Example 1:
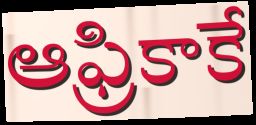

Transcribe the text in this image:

ఆఫ్రికాకే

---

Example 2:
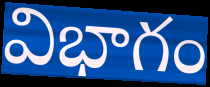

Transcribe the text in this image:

విభాగం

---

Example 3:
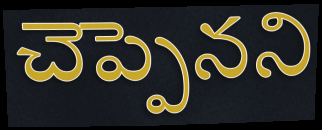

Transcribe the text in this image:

చెప్పెనని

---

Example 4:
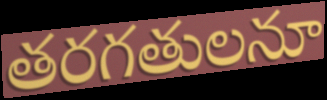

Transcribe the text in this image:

తరగతులనూ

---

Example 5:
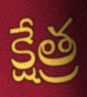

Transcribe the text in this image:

క్షేత్ర